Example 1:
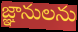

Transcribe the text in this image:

జ్ఞానులను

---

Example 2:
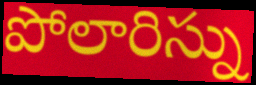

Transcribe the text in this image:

పోలారిస్ను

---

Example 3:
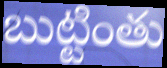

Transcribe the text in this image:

బుట్టింతు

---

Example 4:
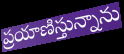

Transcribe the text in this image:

ప్రయాణిస్తున్నాను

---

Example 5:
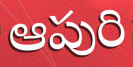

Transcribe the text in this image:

ఆపురి